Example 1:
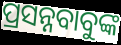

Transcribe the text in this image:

ପ୍ରସନ୍ନବାବୁଙ୍କ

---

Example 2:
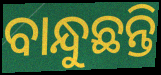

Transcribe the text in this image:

ବାନ୍ଧୁଛନ୍ତି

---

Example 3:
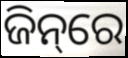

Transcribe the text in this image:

ଜିନ୍‌ରେ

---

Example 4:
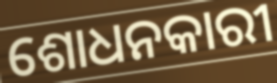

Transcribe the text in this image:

ଶୋଧନକାରୀ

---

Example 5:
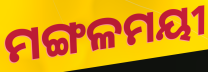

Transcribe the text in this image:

ମଙ୍ଗଳମୟୀ